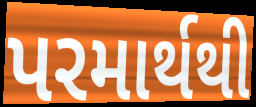
પરમાર્થથી